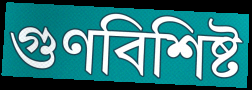
গুণবিশিষ্ট